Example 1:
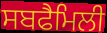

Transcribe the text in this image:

ਸਬਫੈਮਿਲੀ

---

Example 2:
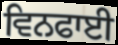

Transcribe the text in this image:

ਵਿਨਫਾਈ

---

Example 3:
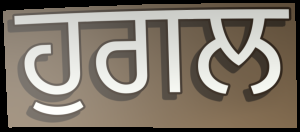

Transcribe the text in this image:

ਹੁਗਲ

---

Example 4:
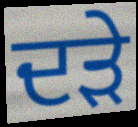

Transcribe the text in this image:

ਦੜੇ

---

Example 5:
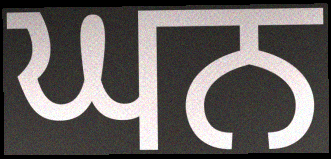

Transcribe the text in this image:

ਘਨ